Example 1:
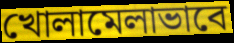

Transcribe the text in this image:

খোলামেলাভাবে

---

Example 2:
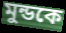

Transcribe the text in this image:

মুন্ডকে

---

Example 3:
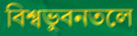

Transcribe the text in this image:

বিশ্বভুবনতলে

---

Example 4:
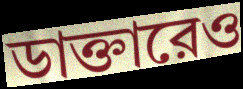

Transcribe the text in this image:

ডাক্তারেও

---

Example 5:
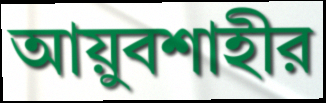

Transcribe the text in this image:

আয়ুবশাহীর